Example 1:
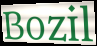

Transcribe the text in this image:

Bozil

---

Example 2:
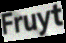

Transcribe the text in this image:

Fruyt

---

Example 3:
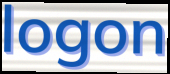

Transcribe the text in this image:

logon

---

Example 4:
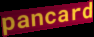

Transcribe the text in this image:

pancard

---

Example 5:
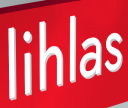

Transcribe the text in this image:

lihlas